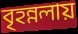
বৃহন্নলায়